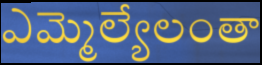
ఎమ్మెల్యేలంతా